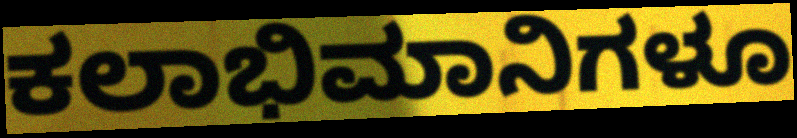
ಕಲಾಭಿಮಾನಿಗಳೂ